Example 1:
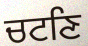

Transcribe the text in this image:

ਚਟਣਿ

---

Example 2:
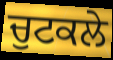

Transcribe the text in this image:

ਚੁਟਕਲੇ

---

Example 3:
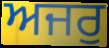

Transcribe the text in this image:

ਅਜਰੁ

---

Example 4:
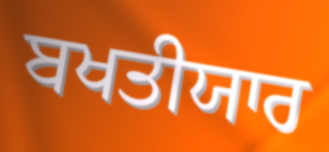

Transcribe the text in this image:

ਬਖਤੀਯਾਰ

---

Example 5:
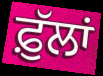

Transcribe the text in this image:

ਫ਼ੁੱਲਾਂ